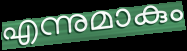
എന്നുമാകും